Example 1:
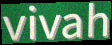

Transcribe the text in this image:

vivah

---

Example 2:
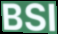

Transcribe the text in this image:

BSI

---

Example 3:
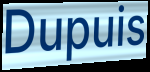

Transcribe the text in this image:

Dupuis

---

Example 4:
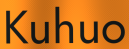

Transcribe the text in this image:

Kuhuo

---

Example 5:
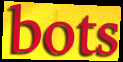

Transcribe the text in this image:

bots